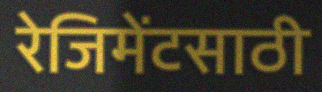
रेजिमेंटसाठी